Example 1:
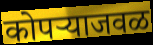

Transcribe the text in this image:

कोपऱ्याजवळ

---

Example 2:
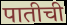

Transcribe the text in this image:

पातीची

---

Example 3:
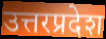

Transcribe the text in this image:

उत्तरप्रदेश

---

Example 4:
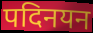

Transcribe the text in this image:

पदिनयन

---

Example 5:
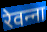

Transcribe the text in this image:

रेवन्ना